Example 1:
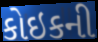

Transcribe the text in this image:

કોઇકની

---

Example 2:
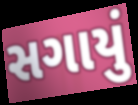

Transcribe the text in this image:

સગાયું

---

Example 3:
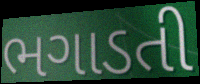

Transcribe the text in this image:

ભગાડતી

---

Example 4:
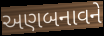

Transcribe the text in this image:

અણબનાવને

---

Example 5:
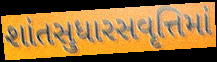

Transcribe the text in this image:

શાંતસુધારસવૃત્તિમાં